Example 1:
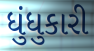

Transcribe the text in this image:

ધુંધુકારી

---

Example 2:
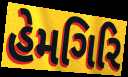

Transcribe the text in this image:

હેમગિરિ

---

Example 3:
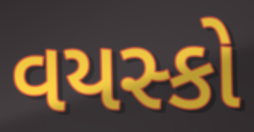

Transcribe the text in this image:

વયસ્કો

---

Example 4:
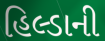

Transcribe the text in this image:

હિલ્ડાની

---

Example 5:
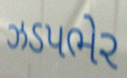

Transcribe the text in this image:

ઝડપભેર